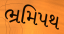
ભ્રમિપથ